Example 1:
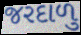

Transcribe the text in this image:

જરદાળુ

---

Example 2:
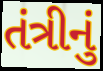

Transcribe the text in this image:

તંત્રીનું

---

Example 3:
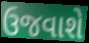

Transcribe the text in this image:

ઉજવાશે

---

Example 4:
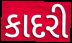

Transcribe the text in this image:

કાદરી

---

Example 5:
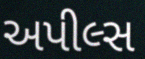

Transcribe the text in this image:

અપીલ્સ